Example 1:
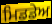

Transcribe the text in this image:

ਮਿਡਡੇਅ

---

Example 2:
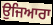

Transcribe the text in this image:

ਉਜਿਆਰਾ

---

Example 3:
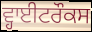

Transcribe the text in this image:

ਵ੍ਹਾਈਟਰੌਕਸ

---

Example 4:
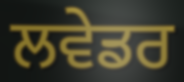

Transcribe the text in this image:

ਲਵੇਡਰ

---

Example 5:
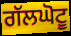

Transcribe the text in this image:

ਗੱਲਘੋਟੂ